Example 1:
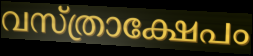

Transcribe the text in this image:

വസ്ത്രാക്ഷേപം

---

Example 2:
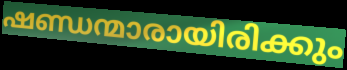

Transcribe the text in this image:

ഷണ്ഡന്മാരായിരിക്കും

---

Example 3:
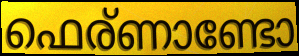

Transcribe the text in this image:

ഫെര്ണാണ്ടോ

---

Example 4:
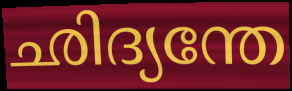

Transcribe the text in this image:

ഛിദ്യന്തേ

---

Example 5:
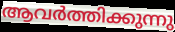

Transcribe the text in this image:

ആവർത്തിക്കുന്നു